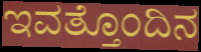
ಇವತ್ತೊಂದಿನ